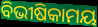
ବିଭୀଷିକାମୟ